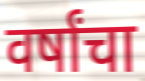
वर्षांचा